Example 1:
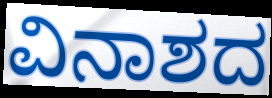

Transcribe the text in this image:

ವಿನಾಶದ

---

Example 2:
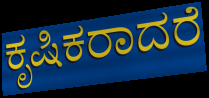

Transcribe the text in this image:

ಕೃಷಿಕರಾದರೆ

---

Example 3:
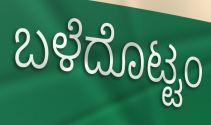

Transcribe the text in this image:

ಬಳೆದೊಟ್ಟಂ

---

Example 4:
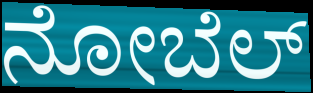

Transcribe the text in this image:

ನೋಬೆಲ್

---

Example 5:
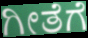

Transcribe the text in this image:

ಗೀತೆಗೆ